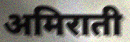
अमिराती